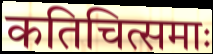
कतिचित्समाः